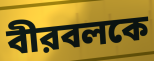
বীরবলকে